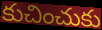
కుచించుకు